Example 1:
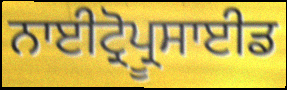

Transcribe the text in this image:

ਨਾਈਟ੍ਰੋਪ੍ਰੂਸਾਈਡ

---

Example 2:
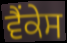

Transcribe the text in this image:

ਵੈਂਕੇਸ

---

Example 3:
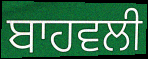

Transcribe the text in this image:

ਬਾਹਵਲੀ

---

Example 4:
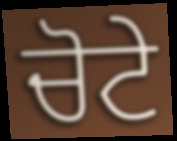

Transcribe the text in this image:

ਚੋਟੇ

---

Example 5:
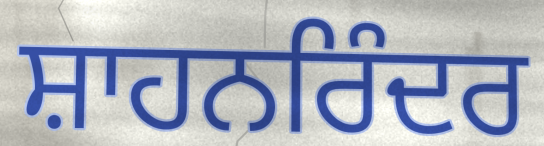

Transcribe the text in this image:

ਸ਼ਾਹਨਰਿੰਦਰ